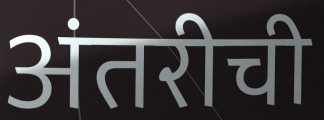
अंतरीची